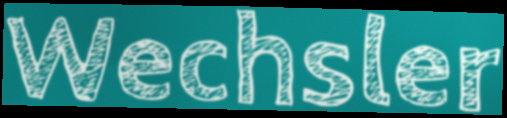
Wechsler